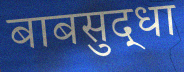
बाबसुद्धा